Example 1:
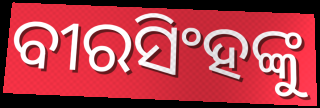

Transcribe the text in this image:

ବୀରସିଂହଙ୍କୁ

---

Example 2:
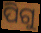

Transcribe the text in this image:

ପିଗୁ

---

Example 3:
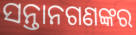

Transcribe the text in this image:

ସନ୍ତାନଗଣଙ୍କର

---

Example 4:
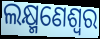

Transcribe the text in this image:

ଲକ୍ଷ୍ମଣେଶ୍ୱର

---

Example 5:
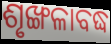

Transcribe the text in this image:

ଶୃଙ୍ଖଳାବଦ୍ଧ